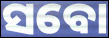
ସବୋ